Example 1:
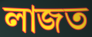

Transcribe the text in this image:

লাজত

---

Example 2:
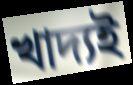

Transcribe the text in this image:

খাদ্যই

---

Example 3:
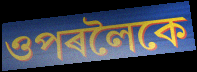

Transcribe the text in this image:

ওপৰলৈকে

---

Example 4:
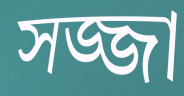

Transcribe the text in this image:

সজ্জা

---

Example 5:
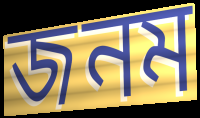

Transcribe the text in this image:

জনম